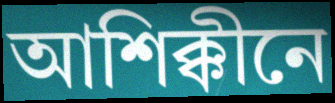
আশিক্কীনে